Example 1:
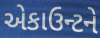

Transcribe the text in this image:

એકાઉન્ટને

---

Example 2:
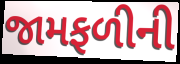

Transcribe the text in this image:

જામફળીની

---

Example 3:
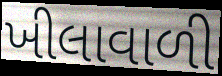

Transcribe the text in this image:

ખીલાવાળી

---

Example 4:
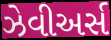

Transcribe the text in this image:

ઝેવીઅર્સ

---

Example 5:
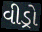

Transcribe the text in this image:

વીડ્રો